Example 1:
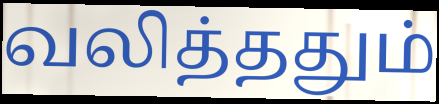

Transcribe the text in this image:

வலித்ததும்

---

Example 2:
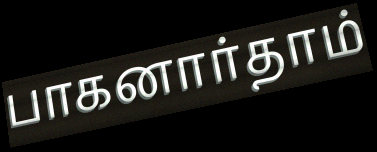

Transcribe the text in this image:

பாகனார்தாம்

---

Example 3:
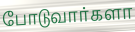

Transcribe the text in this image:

போடுவார்களா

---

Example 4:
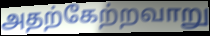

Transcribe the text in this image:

அதற்கேற்றவாறு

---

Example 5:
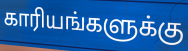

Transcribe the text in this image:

காரியங்களுக்கு